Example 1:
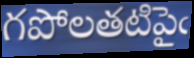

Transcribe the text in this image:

గపోలతటిపైఁ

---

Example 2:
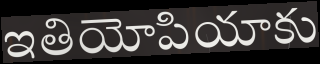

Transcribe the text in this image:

ఇతియోపియాకు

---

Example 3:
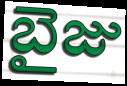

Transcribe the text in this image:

బైజు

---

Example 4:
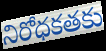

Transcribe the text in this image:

నిరోధకతకు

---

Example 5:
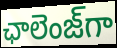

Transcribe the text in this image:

ఛాలెంజ్‌గా